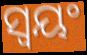
ସ୍ଵୟଂ